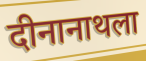
दीनानाथला